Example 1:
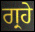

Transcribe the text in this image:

ਗ੍ਰਹੇ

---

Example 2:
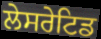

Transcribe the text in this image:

ਲੇਸਰੇਟਿਡ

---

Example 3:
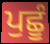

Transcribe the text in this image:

ਪੁਛੂੰ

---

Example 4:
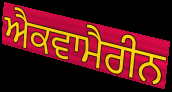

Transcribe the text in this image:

ਐਕਵਾਮੈਰੀਨ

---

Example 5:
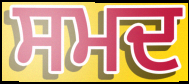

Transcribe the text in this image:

ਸਮਦ